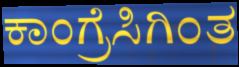
ಕಾಂಗ್ರೆಸಿಗಿಂತ